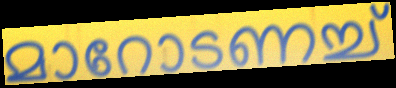
മാറോടണച്ച്